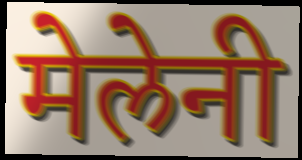
मेलेनी